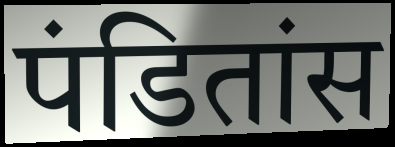
पंडितांस